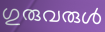
ഗുരുവരുൾ